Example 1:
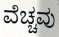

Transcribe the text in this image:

ವೆಚ್ಚವು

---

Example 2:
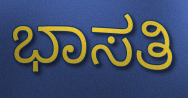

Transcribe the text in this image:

ಭಾಸತಿ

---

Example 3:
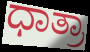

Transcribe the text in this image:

ಧಾತ್ರಾ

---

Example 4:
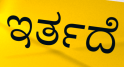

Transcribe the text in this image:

ಇರ್ತದೆ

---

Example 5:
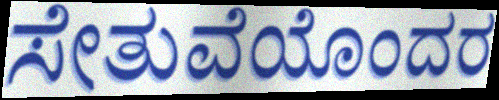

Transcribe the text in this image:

ಸೇತುವೆಯೊಂದರ